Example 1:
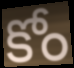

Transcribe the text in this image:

కోం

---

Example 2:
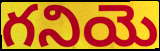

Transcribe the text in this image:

గనియె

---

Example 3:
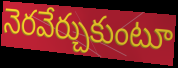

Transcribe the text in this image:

నెరవేర్చుకుంటూ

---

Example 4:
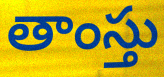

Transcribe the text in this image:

తాంస్తు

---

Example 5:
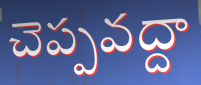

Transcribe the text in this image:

చెప్పవద్దా